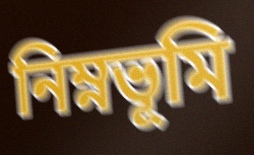
নিম্নভূমি